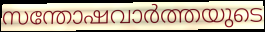
സന്തോഷവാർത്തയുടെ